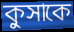
কুসাকে